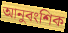
আনুবংশিক